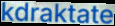
kdraktate